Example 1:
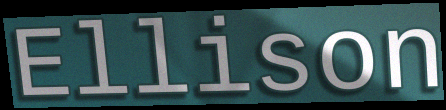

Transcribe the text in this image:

Ellison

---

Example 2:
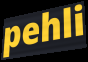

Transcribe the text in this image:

pehli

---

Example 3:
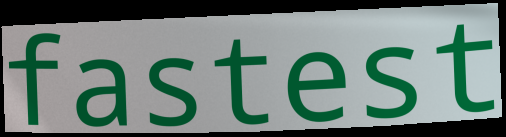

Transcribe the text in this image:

fastest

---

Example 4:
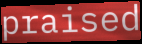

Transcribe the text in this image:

praised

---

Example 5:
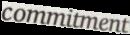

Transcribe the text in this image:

commitment